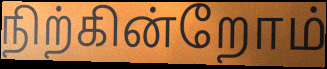
நிற்கின்றோம்